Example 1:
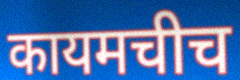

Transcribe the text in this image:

कायमचीच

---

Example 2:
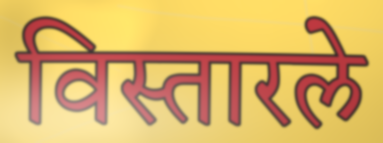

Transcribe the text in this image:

विस्तारले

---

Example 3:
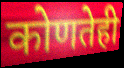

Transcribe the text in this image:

कोणतेही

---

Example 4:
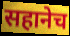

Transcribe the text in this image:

सहानेच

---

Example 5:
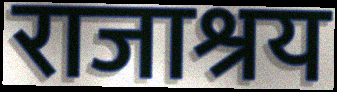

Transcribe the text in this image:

राजाश्रय